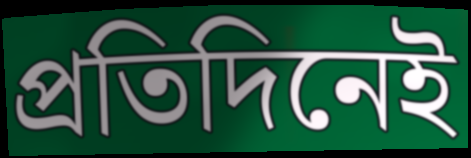
প্ৰতিদিনেই